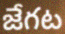
జేగట